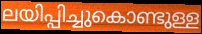
ലയിപ്പിച്ചുകൊണ്ടുള്ള